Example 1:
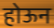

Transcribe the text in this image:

होऊन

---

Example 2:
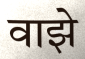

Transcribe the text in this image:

वाझे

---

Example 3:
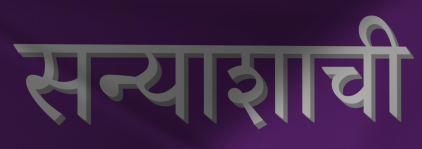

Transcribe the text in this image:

सन्याशाची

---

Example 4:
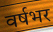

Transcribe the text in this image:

वर्षभर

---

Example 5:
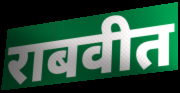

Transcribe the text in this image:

राबवीत